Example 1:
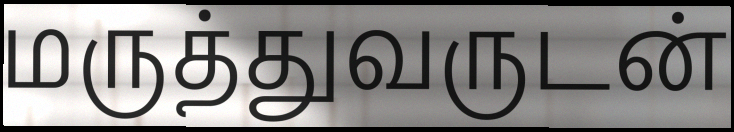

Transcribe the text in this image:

மருத்துவருடன்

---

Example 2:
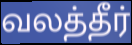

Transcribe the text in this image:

வலத்தீர்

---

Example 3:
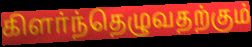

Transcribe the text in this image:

கிளர்ந்தெழுவதற்கும்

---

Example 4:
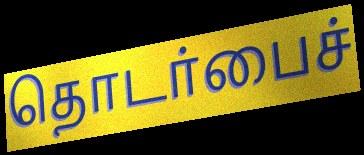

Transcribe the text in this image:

தொடர்பைச்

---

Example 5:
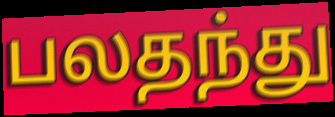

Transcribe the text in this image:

பலதந்து